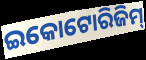
ଇକୋଟୋରିଜିମ୍